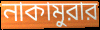
নাকামুরার